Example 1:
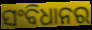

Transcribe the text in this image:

ସଂବିଧାନର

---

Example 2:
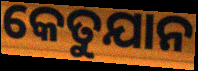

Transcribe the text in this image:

କେତୁଯାନ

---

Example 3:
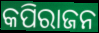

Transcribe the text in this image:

କପିରାଜନ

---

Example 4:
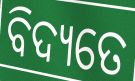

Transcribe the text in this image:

ବିଦ୍ୟତେ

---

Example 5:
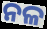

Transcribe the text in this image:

ନଳ